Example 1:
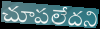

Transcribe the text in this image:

చూపలేదని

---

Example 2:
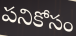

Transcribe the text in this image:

పనికోసం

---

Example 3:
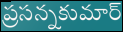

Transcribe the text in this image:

ప్రసన్నకుమార్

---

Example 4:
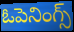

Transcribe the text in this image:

ఓపెనింగ్స్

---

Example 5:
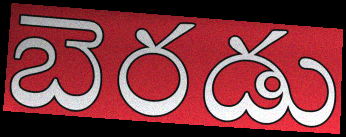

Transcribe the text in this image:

బెరడు